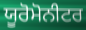
ਯੂਰੋਮੋਨੀਟਰ